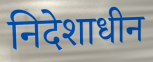
निदेशाधीन